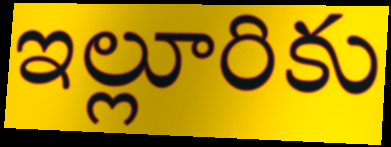
ఇల్లూరికు